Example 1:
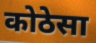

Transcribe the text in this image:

कोठेसा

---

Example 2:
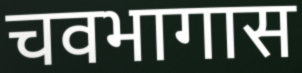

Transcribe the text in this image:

चवभागास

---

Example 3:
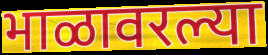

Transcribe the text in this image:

भाळावरल्या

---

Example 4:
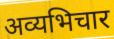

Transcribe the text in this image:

अव्यभिचार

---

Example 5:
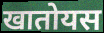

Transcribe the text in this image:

खातोयस